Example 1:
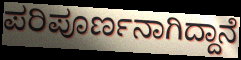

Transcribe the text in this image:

ಪರಿಪೂರ್ಣನಾಗಿದ್ದಾನೆ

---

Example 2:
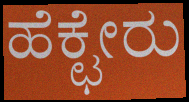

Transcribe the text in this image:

ಹೆಕ್ಟೇರು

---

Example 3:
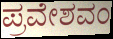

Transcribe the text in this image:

ಪ್ರವೇಶವಂ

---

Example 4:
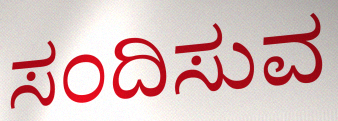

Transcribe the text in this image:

ಸಂದಿಸುವ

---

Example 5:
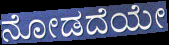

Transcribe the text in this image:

ನೋಡದೆಯೇ